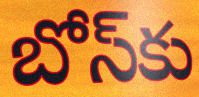
బోస్‌కు